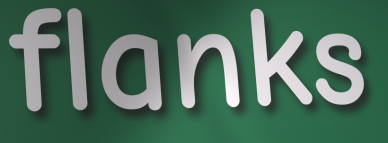
flanks